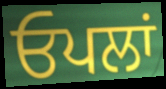
ਓਪਲਾਂ